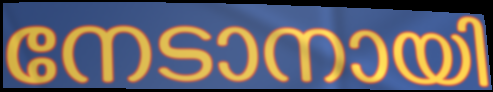
നേടാനായി